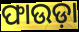
ଫାଉଡ଼ା